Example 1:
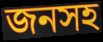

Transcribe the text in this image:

জনসহ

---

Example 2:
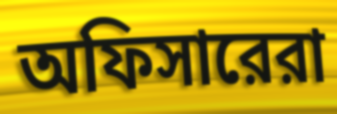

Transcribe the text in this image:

অফিসারেরা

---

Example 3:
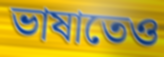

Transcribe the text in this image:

ভাষাতেও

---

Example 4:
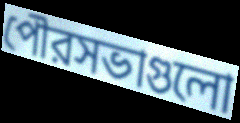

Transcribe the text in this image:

পৌরসভাগুলো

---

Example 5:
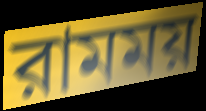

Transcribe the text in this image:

রামময়